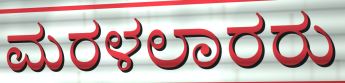
ಮರಳಲಾರರು